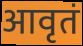
आवृतं